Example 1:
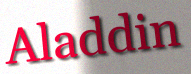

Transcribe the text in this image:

Aladdin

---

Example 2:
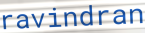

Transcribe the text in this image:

ravindran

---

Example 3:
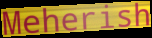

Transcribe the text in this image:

Meherish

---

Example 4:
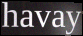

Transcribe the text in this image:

havay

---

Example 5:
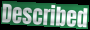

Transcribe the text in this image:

Described